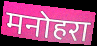
मनोहरा